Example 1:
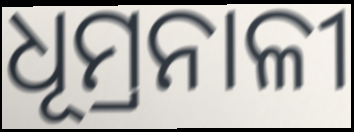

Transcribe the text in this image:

ଧୂମ୍ରନାଳୀ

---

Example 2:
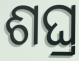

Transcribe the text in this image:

ଶଘ୍ର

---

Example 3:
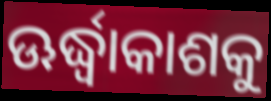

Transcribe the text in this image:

ଊର୍ଦ୍ଧ୍ୱାକାଶକୁ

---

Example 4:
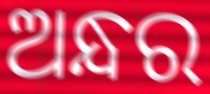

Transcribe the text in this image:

ଅନ୍ଧର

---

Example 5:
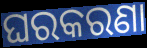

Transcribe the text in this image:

ଘରକରଣା